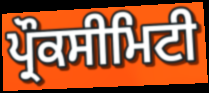
ਪ੍ਰੌਕਸੀਮਿਟੀ